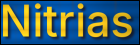
Nitrias